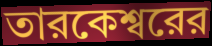
তারকেশ্বরের